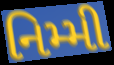
નિમ્મી